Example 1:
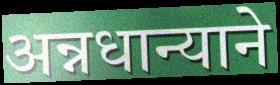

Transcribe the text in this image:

अन्नधान्याने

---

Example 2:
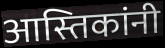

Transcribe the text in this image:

आस्तिकांनी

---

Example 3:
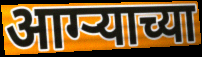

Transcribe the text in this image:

आग्ऱ्याच्या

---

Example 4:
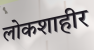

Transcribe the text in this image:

लोकशाहीर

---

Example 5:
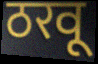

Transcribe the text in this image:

ठरवू